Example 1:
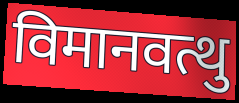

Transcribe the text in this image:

विमानवत्थु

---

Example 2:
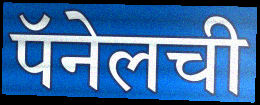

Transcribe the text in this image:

पॅनेलची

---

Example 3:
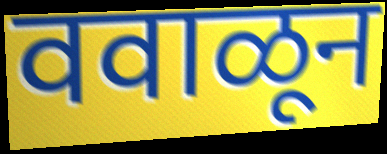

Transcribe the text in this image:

ववाळून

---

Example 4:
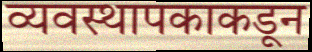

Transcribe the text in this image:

व्यवस्थापकाकडून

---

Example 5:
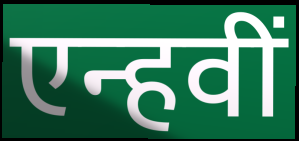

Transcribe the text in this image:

एन्हवीं